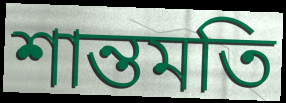
শান্তমতি